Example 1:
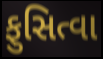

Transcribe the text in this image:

ફુસિત્વા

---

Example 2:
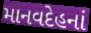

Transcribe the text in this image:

માનવદેહનાં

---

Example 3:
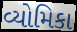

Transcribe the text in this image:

વ્યોમિકા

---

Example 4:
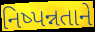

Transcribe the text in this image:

નિષ્પન્નતાને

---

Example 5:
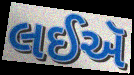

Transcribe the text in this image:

લઈઍ